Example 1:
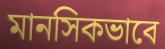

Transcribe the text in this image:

মানসিকভাবে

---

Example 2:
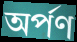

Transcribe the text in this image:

অর্পণ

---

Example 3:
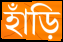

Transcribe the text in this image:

হাঁড়ি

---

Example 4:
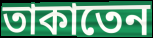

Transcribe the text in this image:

তাকাতেন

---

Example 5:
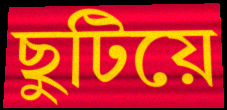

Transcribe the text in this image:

ছুটিয়ে